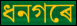
ধনগৰে